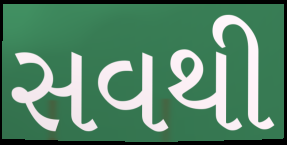
સવથી